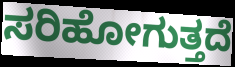
ಸರಿಹೋಗುತ್ತದೆ